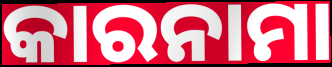
କାରନାମା